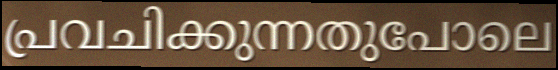
പ്രവചിക്കുന്നതുപോലെ